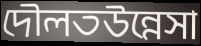
দৌলতউন্নেসা